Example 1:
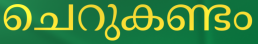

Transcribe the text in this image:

ചെറുകണ്ടം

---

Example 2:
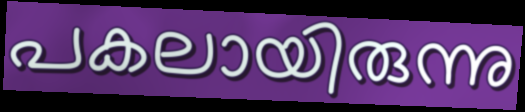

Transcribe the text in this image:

പകലായിരുന്നു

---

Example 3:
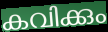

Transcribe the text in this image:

കവിക്കും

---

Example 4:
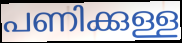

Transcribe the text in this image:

പണിക്കുള്ള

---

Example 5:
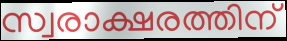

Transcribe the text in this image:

സ്വരാക്ഷരത്തിന്